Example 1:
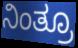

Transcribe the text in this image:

ನಿಂತ್ರೂ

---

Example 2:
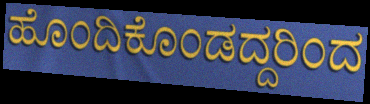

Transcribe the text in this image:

ಹೊಂದಿಕೊಂಡದ್ದರಿಂದ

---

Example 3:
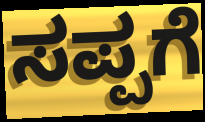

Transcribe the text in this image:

ಸಪ್ಪಗೆ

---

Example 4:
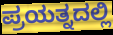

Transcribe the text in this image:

ಪ್ರಯತ್ನದಲ್ಲಿ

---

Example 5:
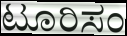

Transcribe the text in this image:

ಟೂರಿಸಂ